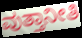
ವುತ್ತಾನೀತಿ